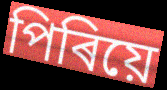
পিৰিয়ে